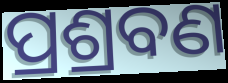
ପ୍ରଶ୍ରବଣ